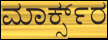
ಮಾರ್ಕ್ಸ್‌ರ